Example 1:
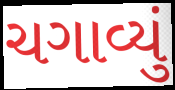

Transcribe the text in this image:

ચગાવ્યું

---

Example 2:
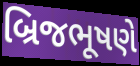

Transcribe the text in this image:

બ્રિજભૂષણે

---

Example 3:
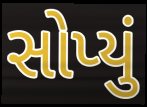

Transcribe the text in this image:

સોપ્યું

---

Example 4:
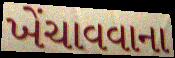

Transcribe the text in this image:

ખેંચાવવાના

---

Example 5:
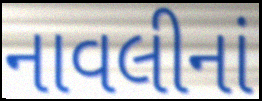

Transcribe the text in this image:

નાવલીનાં